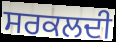
ਸਰਕਲਦੀ